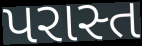
પરાસ્ત